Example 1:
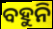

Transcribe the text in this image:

ବହୁନି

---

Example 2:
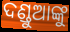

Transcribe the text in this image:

ଦଣ୍ଡୁଆଙ୍କୁ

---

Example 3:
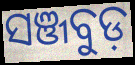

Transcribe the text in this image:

ସଞ୍ଜବୁଡ଼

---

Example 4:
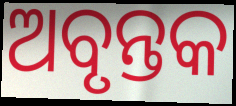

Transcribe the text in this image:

ଅବୃନ୍ତକ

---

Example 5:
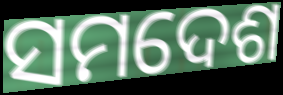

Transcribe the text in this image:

ସମଦେଶ